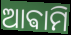
ଆଵାମି